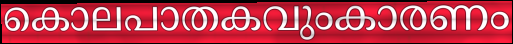
കൊലപാതകവുംകാരണം